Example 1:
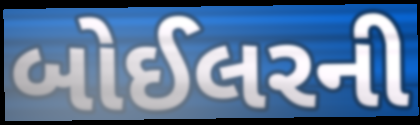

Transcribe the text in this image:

બોઈલરની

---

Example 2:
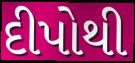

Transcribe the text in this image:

દીપોથી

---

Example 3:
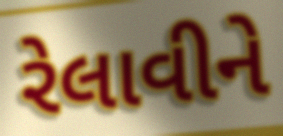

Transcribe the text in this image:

રેલાવીને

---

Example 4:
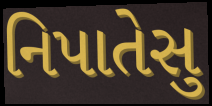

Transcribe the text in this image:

નિપાતેસુ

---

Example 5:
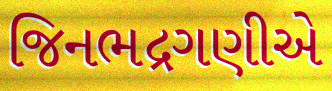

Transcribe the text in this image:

જિનભદ્રગણીએ